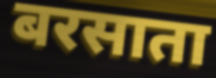
बरसाता